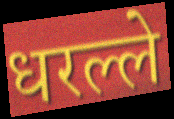
धरल्ले